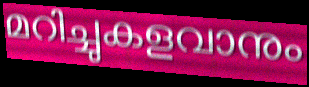
മറിച്ചുകളവാനും